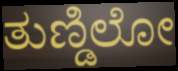
ತುಣ್ಡಿಲೋ